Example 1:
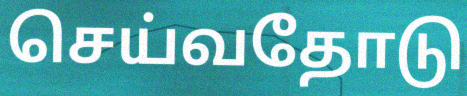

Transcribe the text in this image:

செய்வதோடு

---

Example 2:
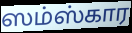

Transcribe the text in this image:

ஸம்ஸ்கார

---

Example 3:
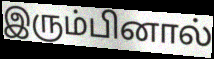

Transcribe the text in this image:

இரும்பினால்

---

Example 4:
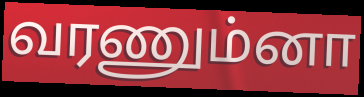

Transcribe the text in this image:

வரணும்னா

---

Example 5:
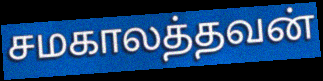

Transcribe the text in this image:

சமகாலத்தவன்